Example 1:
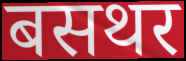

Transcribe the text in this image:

बसथर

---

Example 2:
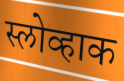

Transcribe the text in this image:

स्लोव्हाक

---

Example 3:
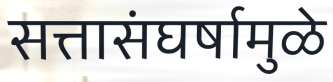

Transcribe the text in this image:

सत्तासंघर्षामुळे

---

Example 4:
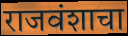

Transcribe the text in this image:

राजवंशाचा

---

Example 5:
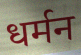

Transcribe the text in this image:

धर्मन